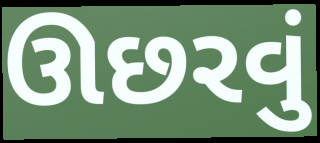
ઊછરવું